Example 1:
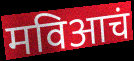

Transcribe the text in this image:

मविआचं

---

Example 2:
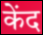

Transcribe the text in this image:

केंद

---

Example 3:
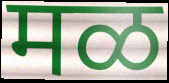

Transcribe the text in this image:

मळ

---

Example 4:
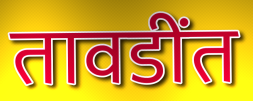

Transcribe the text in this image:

तावडींत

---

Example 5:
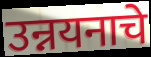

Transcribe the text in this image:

उन्नयनाचे